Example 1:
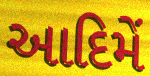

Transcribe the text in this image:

આદિમેં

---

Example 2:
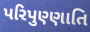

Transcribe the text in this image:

પરિપુણ્ણાતિ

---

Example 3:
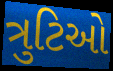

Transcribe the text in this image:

ત્રુટિઓ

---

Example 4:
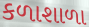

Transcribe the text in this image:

કળાશાળા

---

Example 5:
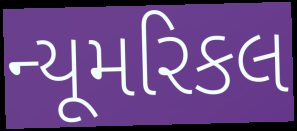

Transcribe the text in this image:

ન્યૂમરિકલ